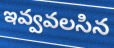
ఇవ్వవలసిన